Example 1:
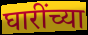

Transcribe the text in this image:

घारींच्या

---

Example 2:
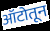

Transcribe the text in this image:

ऑटोतून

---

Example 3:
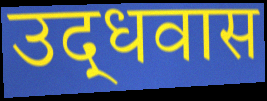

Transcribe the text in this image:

उद्धवास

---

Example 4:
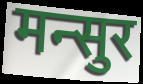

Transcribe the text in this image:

मन्सुर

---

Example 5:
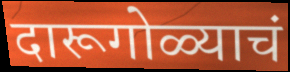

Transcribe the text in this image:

दारूगोळ्याचं